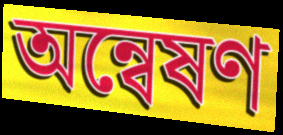
অন্বেষণ